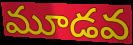
మూడవ